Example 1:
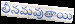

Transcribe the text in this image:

లీనమవుతాయి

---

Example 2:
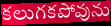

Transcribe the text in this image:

కలుగకపోవును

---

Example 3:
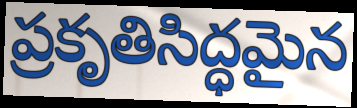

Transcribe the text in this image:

ప్రకృతిసిద్ధమైన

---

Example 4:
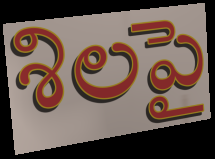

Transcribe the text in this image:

శిలపై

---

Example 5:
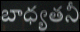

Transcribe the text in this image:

బాధ్యతనీ